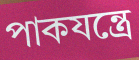
পাকযন্ত্রে